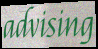
advising